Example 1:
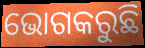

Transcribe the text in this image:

ଭୋଗକରୁଛି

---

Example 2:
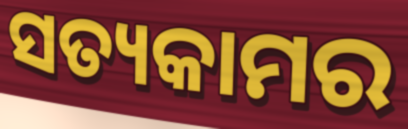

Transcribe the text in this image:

ସତ୍ୟକାମର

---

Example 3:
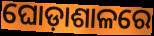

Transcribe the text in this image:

ଘୋଡ଼ାଶାଳରେ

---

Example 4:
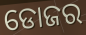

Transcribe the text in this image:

ଡୋଜର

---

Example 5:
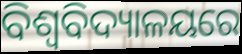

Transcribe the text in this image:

ବିଶ୍ବବିଦ୍ୟାଳୟରେ